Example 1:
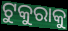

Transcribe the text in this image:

ଟୁକୁରାକୁ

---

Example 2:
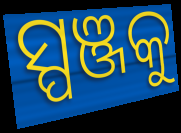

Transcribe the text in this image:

ସ୍ପଞ୍ଜକୁ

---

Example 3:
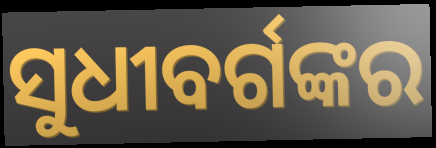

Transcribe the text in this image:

ସୁଧୀବର୍ଗଙ୍କର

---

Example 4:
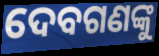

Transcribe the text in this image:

ଦେବଗଣଙ୍କୁ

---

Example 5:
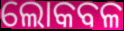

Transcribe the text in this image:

ଲୋକବଳ